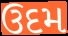
ઉદમ